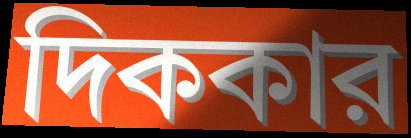
দিককার